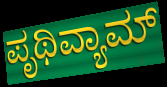
ಪೃಥಿವ್ಯಾಮ್